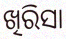
ଖିରିସା